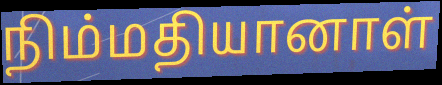
நிம்மதியானாள்